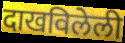
दाखविलेली